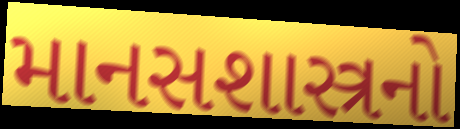
માનસશાસ્ત્રનો